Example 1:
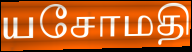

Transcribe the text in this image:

யசோமதி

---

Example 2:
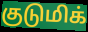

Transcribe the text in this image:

குடுமிக்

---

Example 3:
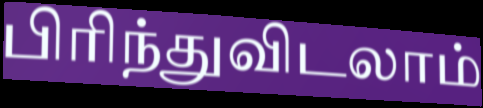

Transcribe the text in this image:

பிரிந்துவிடலாம்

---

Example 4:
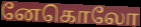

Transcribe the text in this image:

னேகொலோ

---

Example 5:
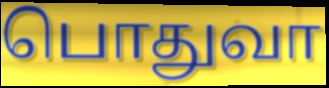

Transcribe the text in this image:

பொதுவா